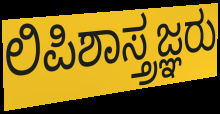
ಲಿಪಿಶಾಸ್ತ್ರಜ್ಞರು